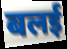
बलई